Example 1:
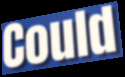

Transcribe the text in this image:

Could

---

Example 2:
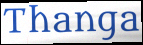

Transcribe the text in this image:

Thanga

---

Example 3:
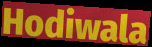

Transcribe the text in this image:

Hodiwala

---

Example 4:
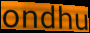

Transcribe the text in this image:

ondhu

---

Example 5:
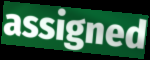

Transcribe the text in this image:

assigned